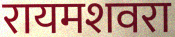
रायमशवरा